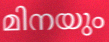
മിനയും